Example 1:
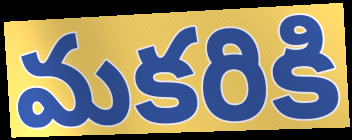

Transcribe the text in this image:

మకరికి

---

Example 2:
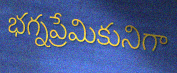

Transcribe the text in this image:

భగ్నప్రేమికునిగా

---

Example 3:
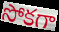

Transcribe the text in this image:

సోకగా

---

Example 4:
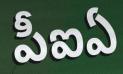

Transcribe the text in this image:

పీఐఏ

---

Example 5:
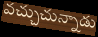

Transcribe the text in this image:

వచ్చుచున్నాడు